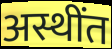
अस्थींत